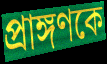
প্রাঙ্গণকে